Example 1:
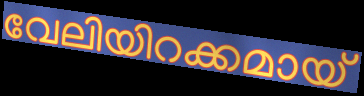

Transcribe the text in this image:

വേലിയിറക്കമായ്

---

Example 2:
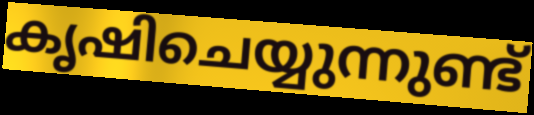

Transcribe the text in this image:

കൃഷിചെയ്യുന്നുണ്ട്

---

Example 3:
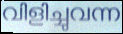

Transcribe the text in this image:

വിളിച്ചുവന്ന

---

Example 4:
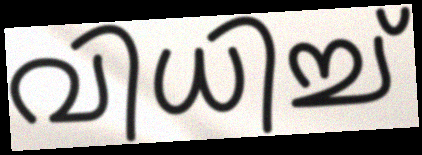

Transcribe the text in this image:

വിധിച്ച്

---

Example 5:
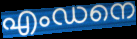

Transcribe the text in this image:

എംഡനെ